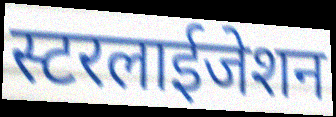
स्टरलाईजेशन